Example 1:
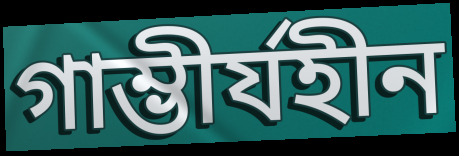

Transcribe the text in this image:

গাম্ভীর্যহীন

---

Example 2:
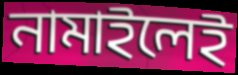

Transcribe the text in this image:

নামাইলেই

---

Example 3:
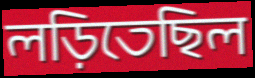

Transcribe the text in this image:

লড়িতেছিল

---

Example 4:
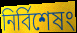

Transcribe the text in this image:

নির্বিশেষং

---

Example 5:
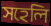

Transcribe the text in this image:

সহেলি